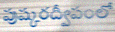
పుష్కరద్వీపంలో